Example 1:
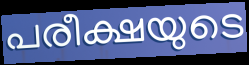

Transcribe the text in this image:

പരീക്ഷയുടെ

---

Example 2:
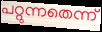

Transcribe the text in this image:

പറ്റുന്നതെന്ന്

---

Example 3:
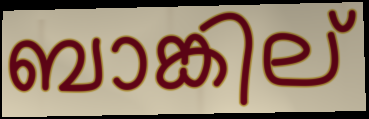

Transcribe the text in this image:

ബാങ്കില്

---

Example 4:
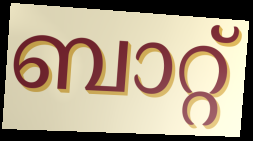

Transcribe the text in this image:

ബാറ്റ്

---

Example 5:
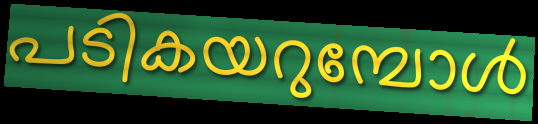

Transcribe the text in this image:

പടികയറുമ്പോൾ